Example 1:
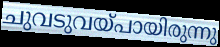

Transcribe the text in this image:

ചുവടുവയ്പായിരുന്നു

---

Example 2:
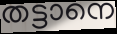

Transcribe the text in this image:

തട്ടാനെ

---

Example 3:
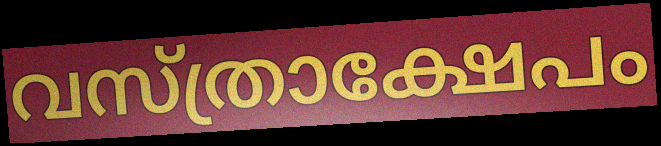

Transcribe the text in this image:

വസ്ത്രാക്ഷേപം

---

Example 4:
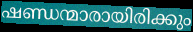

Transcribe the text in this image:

ഷണ്ഡന്മാരായിരിക്കും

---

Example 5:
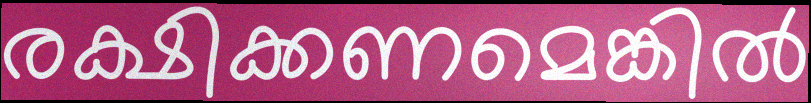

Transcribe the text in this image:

രക്ഷിക്കണമെങ്കിൽ